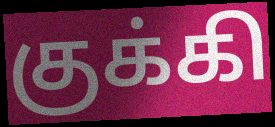
குக்கி